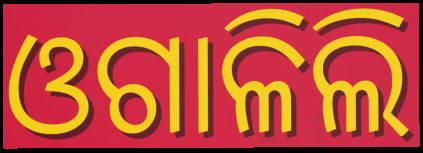
ଓଗାଳିଲି